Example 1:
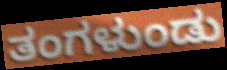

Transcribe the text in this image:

ತಂಗಳುಂಡು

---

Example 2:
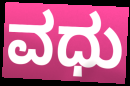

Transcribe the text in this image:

ವಧು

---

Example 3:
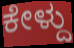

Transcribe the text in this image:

ಕೇಳ್ದು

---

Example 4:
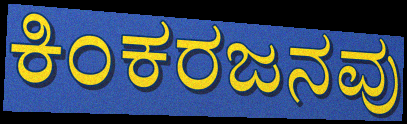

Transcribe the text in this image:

ಕಿಂಕರಜನವು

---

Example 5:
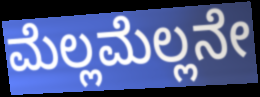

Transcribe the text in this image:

ಮೆಲ್ಲಮೆಲ್ಲನೇ